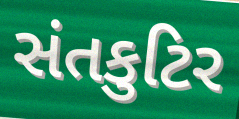
સંતકુટિર